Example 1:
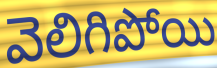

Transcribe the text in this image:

వెలిగిపోయి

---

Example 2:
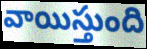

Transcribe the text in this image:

వాయిస్తుంది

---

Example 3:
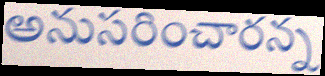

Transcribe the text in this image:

అనుసరించారన్న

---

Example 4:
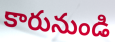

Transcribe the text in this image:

కారునుండి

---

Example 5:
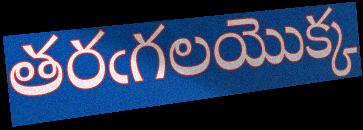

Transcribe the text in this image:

తరఁగలయొక్క